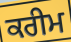
ਕਰੀਮ